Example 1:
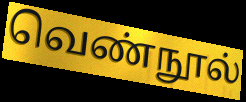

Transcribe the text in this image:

வெண்நூல்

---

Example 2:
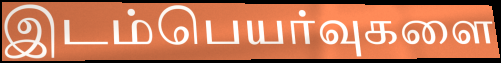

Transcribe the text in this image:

இடம்பெயர்வுகளை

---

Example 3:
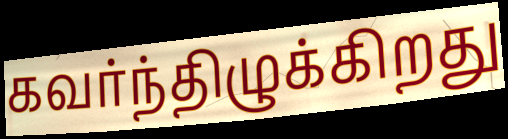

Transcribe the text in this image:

கவர்ந்திழுக்கிறது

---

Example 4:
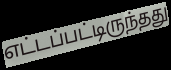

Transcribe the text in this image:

எட்டப்பட்டிருந்தது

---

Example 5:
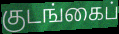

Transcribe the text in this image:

குடங்கைப்